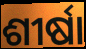
ଶୀର୍ଷା